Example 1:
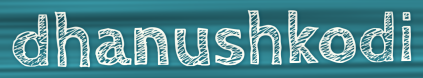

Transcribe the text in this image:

dhanushkodi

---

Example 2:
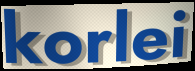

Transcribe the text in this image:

korlei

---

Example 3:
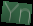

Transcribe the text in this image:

Yn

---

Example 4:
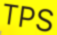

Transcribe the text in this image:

TPS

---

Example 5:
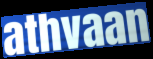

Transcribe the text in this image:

athvaan